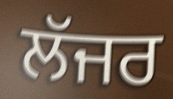
ਲੱਜਰ